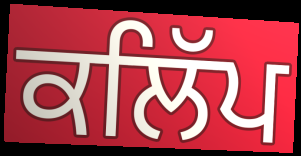
ਕਲਿੱਪ